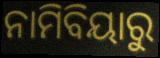
ନାମିବିୟାରୁ